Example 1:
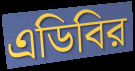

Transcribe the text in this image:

এডিবির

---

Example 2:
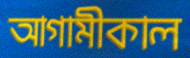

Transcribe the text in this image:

আগামীকাল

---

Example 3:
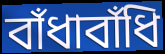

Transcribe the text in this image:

বাঁধাবাঁধি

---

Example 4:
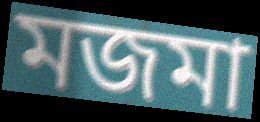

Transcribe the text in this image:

মজমা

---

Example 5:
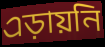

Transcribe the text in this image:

এড়ায়নি